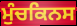
ਮੁੰਚਕਿਨਸ